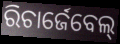
ରିଚାର୍ଜେବେଲ୍